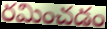
రమించడం